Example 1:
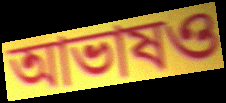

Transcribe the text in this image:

আভাষও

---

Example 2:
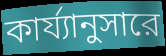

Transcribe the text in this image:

কার্য্যানুসারে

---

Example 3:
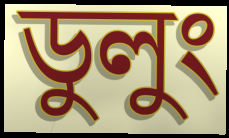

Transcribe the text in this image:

ডুলুং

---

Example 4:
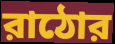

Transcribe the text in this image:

রাঠোর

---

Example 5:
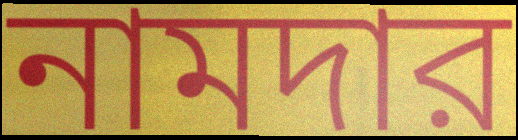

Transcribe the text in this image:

নামদার